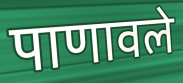
पाणावले